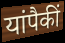
यांपैकीं